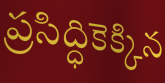
ప్రసిద్ధికెక్కిన